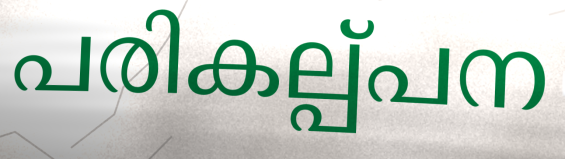
പരികല്പ്പന